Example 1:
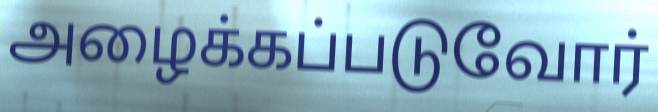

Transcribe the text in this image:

அழைக்கப்படுவோர்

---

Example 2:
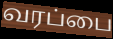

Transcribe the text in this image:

வரப்பை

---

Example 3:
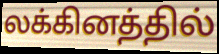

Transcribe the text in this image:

லக்கினத்தில்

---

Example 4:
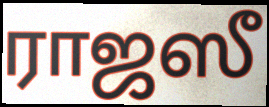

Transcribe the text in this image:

ராஜஸீ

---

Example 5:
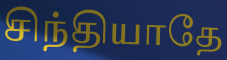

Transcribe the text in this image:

சிந்தியாதே